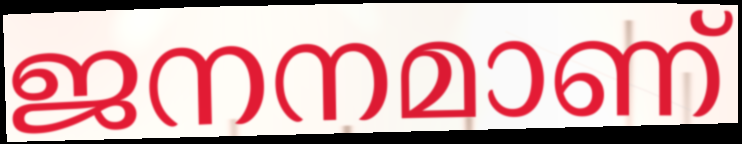
ജനനമാണ്